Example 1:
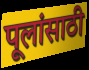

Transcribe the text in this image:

पूलांसाठी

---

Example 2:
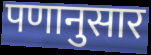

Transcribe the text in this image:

पणानुसार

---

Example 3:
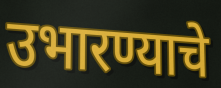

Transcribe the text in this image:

उभारण्याचे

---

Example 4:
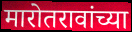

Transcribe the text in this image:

मारोतरावांच्या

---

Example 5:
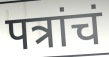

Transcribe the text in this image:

पत्रांचं